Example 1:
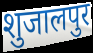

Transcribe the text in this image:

शुजालपुर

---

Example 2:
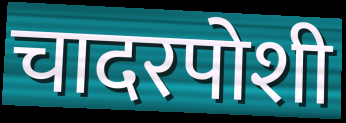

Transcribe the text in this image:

चादरपोशी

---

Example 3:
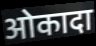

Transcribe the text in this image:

ओकादा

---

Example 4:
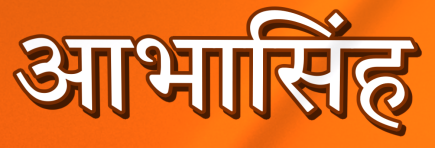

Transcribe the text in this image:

आभासिंह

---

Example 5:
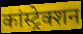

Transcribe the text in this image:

कांस्ट्रेक्शन